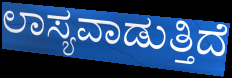
ಲಾಸ್ಯವಾಡುತ್ತಿದೆ